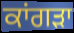
ਕਾਂਗਡ਼ਾ